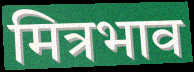
मित्रभाव